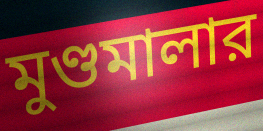
মুণ্ডমালার